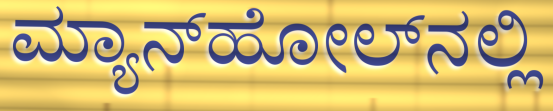
ಮ್ಯಾನ್‌ಹೋಲ್‌ನಲ್ಲಿ